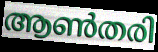
ആൺതരി